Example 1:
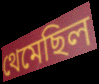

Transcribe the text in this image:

থেমেছিল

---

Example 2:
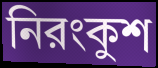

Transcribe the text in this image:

নিরংকুশ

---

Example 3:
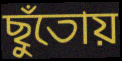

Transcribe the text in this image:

ছুঁতোয়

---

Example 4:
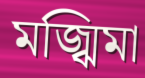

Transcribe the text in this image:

মজ্ঝিমা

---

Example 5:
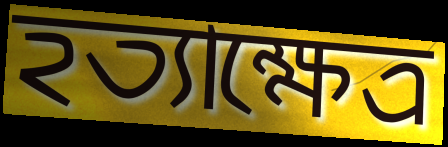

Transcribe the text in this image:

হত্যাক্ষেত্র